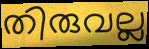
തിരുവല്ല